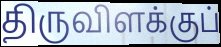
திருவிளக்குப்